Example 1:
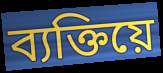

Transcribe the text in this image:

ব্যক্তিয়ে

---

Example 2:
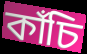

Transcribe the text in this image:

কাঁচি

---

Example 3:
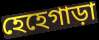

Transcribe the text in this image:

হেহেগাড়া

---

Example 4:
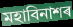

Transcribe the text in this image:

মহাবিনাশৰ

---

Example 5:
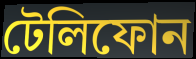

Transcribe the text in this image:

টেলিফোন